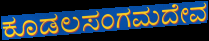
ಕೂಡಲಸಂಗಮದೇವ